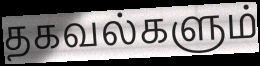
தகவல்களும்